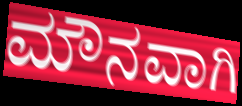
ಮೌನವಾಗಿ